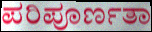
ಪರಿಪೂರ್ಣತಾ